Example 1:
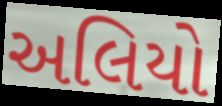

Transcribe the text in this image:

અલિયો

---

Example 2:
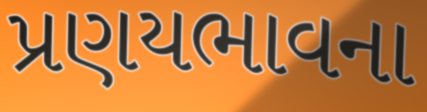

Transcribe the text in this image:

પ્રણયભાવના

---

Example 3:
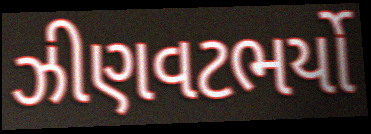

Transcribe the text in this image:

ઝીણવટભર્યો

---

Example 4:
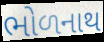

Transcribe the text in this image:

ભોળનાથ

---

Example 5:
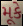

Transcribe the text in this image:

મૂકે